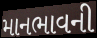
માનભાવની